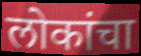
लोकांचा